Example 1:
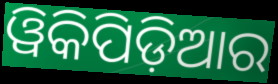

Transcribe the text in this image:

ୱିକିପିଡ଼ିଆର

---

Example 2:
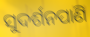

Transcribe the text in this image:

ସୁଦର୍ଶନପାଣି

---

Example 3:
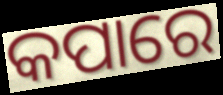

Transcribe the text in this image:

କପାରେ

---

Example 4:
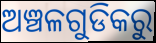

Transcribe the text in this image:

ଅଞ୍ଚଳଗୁଡିକରୁ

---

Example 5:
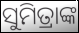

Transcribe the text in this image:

ସୁମିତ୍ରାଙ୍କ